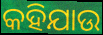
କହିଯାଉ